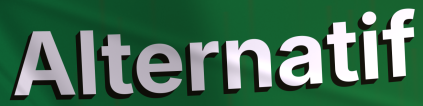
Alternatif